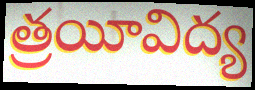
త్రయీవిద్య